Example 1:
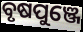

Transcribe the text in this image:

ବୃଷପୁଞ୍ଜେ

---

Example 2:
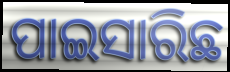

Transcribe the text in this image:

ପାଇସାରିଛ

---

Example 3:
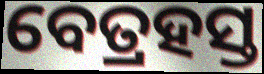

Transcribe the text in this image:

ବେତ୍ରହସ୍ତ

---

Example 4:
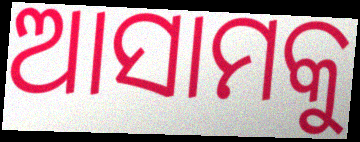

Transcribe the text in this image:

ଆସାମକୁ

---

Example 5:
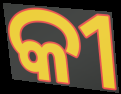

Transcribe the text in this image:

କୀ